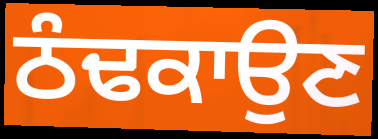
ਠੰਢਕਾਉਣ